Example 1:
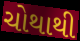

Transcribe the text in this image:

ચોથાથી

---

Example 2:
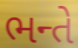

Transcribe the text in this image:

ભન્તે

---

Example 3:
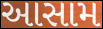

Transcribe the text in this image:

આસામ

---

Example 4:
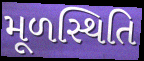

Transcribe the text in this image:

મૂળસ્થિતિ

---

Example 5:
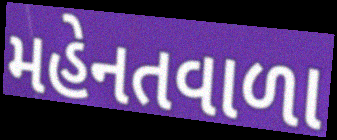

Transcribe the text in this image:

મહેનતવાળા